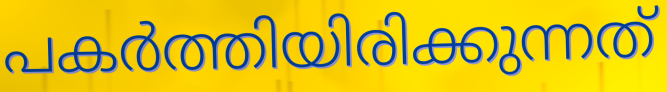
പകർത്തിയിരിക്കുന്നത്